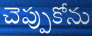
చెప్పుకోను